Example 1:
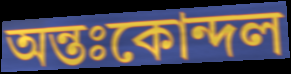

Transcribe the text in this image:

অন্তঃকোন্দল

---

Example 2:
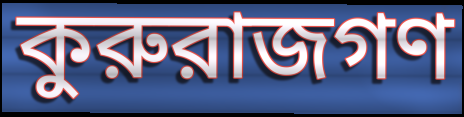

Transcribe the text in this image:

কুরুরাজগণ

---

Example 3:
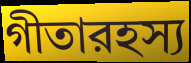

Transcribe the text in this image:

গীতারহস্য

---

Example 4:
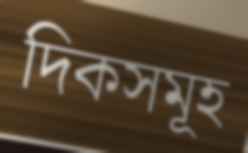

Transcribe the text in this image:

দিকসমূহ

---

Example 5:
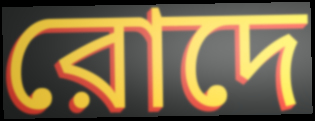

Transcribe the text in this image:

রোদে